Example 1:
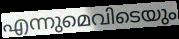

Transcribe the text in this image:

എന്നുമെവിടെയും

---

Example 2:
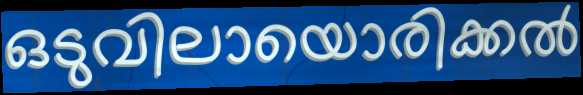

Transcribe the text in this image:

ഒടുവിലായൊരിക്കൽ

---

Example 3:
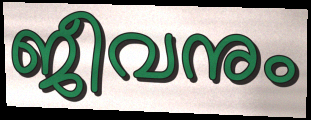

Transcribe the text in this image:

ജീവനും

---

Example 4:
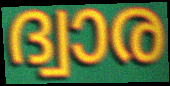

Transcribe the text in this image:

ദ്വാര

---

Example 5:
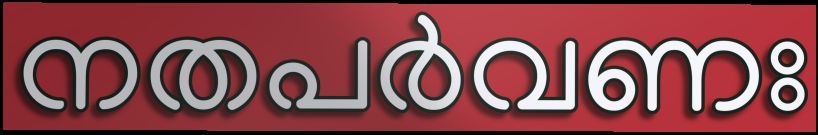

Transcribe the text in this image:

നതപർവണഃ